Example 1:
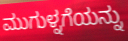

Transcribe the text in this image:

ಮುಗುಳ್ನಗೆಯನ್ನು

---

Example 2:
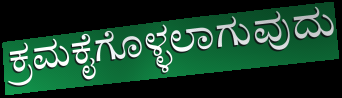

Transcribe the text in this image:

ಕ್ರಮಕೈಗೊಳ್ಳಲಾಗುವುದು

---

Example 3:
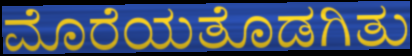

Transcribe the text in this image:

ಮೊರೆಯತೊಡಗಿತು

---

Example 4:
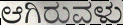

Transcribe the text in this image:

ಆಗಿರುವಳು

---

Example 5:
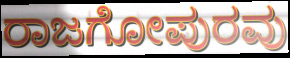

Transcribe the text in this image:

ರಾಜಗೋಪುರವು